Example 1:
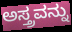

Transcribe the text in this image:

ಅಸ್ತ್ರವನ್ನು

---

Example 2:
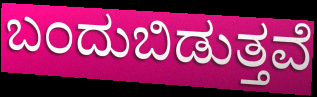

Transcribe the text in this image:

ಬಂದುಬಿಡುತ್ತವೆ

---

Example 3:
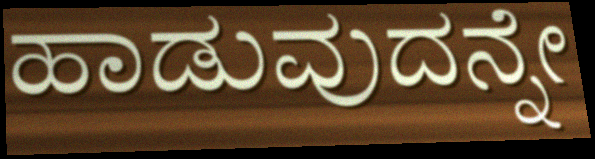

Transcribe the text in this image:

ಹಾಡುವುದನ್ನೇ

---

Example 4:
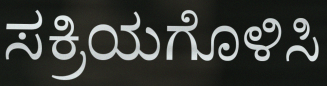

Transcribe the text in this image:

ಸಕ್ರಿಯಗೊಳಿಸಿ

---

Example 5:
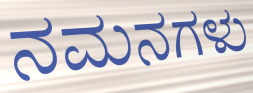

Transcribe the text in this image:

ನಮನಗಳು